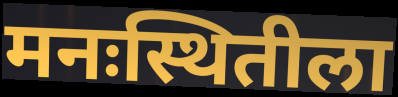
मनःस्थितीला